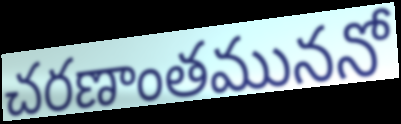
చరణాంతముననో